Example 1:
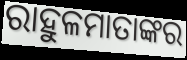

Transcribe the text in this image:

ରାହୁଳମାତାଙ୍କର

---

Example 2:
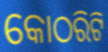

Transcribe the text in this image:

କୋଠରିଟି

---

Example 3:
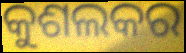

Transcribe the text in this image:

କୁଶଲକର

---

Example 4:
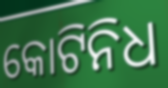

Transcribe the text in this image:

କୋଟିନିଧ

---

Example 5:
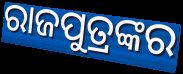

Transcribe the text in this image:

ରାଜପୁତ୍ରଙ୍କର